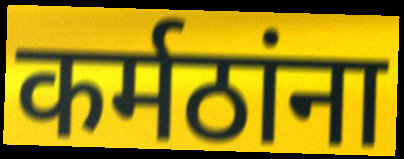
कर्मठांना